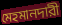
মেহমানদারী